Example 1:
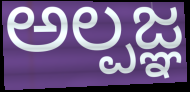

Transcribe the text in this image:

ಅಲ್ಪಜ್ಞ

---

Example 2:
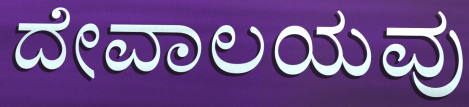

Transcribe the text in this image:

ದೇವಾಲಯವು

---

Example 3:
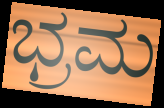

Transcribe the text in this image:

ಭ್ರಮ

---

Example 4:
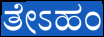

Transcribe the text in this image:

ತೇಽಹಂ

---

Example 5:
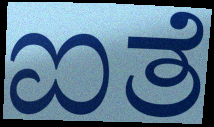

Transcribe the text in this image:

ಐತೆ